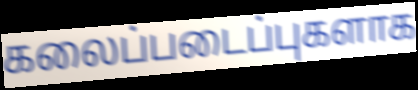
கலைப்படைப்புகளாக